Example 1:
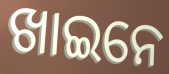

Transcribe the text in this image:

ଖାଇନେ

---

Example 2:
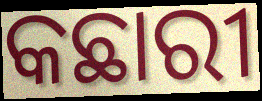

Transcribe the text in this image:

କଛାରୀ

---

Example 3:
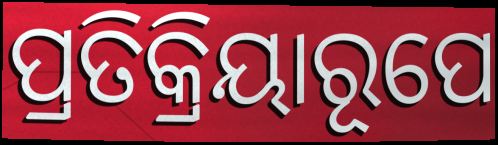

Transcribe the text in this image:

ପ୍ରତିକ୍ରିୟାରୂପେ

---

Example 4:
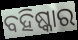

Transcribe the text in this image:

ବହିଷ୍କାର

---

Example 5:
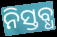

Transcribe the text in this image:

ନିସ୍ତବ୍ଧ